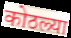
कोठल्या